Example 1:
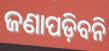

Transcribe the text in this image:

ଜଣାପଡ଼ିବନି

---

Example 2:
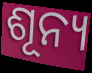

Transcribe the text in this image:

ଶୂନ୍ୟ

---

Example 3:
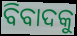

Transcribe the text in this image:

ବିବାଦକୁ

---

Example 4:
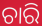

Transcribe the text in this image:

ଚାରି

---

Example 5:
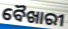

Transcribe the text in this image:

ବୈଖାରୀ